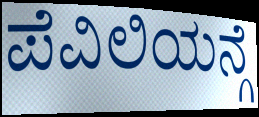
ಪೆವಿಲಿಯನ್ಗೆ